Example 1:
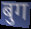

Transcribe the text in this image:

बुग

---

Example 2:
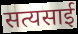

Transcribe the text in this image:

सत्यसाई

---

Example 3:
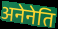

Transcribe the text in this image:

अनेनेति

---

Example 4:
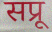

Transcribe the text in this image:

सप्रू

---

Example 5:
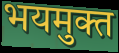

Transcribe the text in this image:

भयमुक्‍त